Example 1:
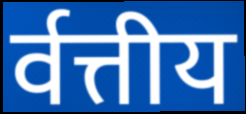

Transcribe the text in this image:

र्वत्तीय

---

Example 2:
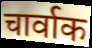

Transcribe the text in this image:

चार्वाक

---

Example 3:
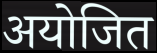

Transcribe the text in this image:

अयोजित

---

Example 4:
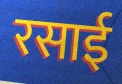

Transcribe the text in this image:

रसाई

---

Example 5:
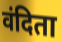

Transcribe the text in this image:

वंदिता